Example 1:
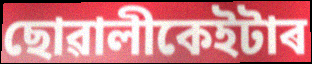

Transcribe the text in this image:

ছোৱালীকেইটাৰ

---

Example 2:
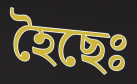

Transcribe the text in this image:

হৈছেঃ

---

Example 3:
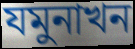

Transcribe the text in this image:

যমুনাখন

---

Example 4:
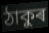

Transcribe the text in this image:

ঠাকুৰ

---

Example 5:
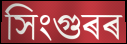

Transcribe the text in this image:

সিংগুৰৰ